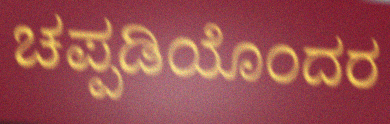
ಚಪ್ಪಡಿಯೊಂದರ